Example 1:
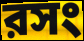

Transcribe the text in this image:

রসং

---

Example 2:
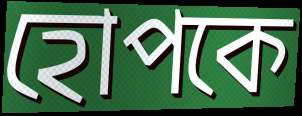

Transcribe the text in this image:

হোপকে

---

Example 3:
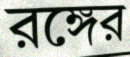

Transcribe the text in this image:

রঙ্গের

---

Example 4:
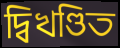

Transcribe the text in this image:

দ্বিখণ্ডিত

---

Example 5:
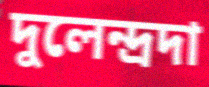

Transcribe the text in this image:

দুলেন্দ্রদা